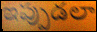
ఇప్పుడలా